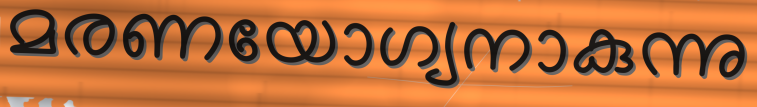
മരണയോഗ്യനാകുന്നു